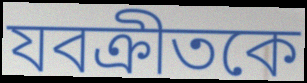
যবক্রীতকে